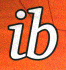
ib